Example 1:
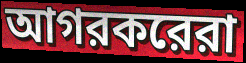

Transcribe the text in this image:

আগরকরেরা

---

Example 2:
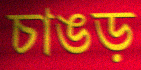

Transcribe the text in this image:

চাঙড়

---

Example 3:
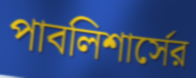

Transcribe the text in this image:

পাবলিশার্সের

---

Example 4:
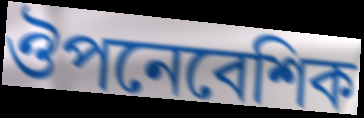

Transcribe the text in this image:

ঔপনেবেশিক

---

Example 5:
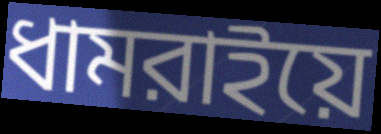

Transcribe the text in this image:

ধামরাইয়ে